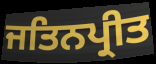
ਜਤਿਨਪ੍ਰੀਤ